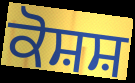
ਕੋਸ਼ਸ਼